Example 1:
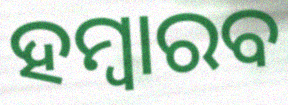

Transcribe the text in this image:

ହମ୍ବାରବ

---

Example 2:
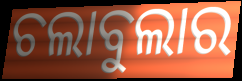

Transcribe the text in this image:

ଚଲାବୁଲାର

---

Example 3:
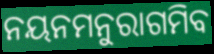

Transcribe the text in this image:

ନୟନମନୁରାଗମିବ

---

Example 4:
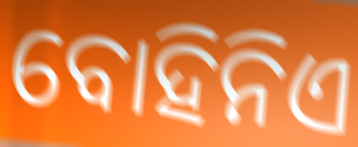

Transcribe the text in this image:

ବୋହିନିଏ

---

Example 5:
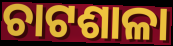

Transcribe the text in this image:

ଚାଟଶାଳା